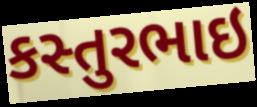
કસ્તુરભાઇ